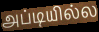
அப்டியில்ல